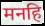
मनहि